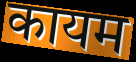
कायम